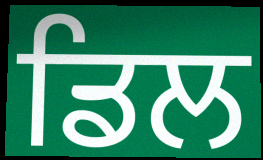
ਡਿਲ